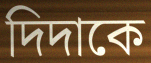
দিদাকে